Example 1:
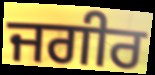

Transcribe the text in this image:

ਜਗੀਰ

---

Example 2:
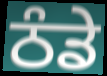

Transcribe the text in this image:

ਠੰਡੇ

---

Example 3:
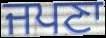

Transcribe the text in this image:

ਜਪਣਾ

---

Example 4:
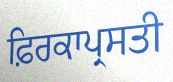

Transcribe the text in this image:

ਫ਼ਿਰਕਾਪ੍ਰਸਤੀ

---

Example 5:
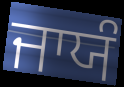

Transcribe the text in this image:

ਜਾਯੰ